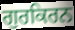
ਗੁਰਕਿਰਨ